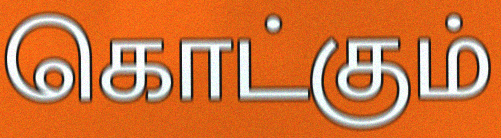
கொட்கும்